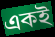
একই